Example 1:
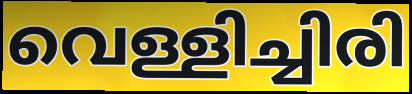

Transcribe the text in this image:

വെള്ളിച്ചിരി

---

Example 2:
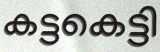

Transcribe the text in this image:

കട്ടകെട്ടി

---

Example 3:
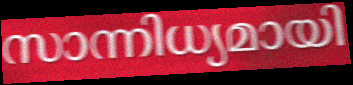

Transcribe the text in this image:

സാന്നിധ്യമായി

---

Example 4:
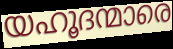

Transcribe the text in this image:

യഹൂദന്മാരെ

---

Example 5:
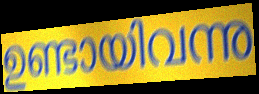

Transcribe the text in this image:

ഉണ്ടായിവന്നു